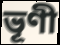
ভূণী